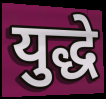
युद्धे